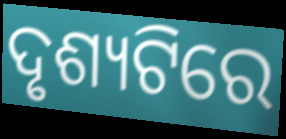
ଦୃଶ୍ୟଟିରେ